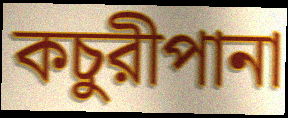
কচুরীপানা